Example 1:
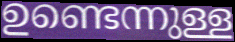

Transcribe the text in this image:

ഉണ്ടെന്നുള്ള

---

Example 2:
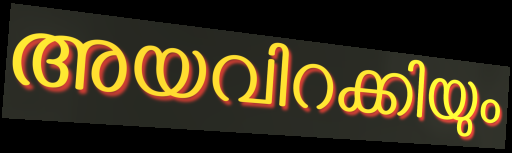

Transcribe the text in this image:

അയവിറക്കിയും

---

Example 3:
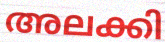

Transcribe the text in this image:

അലക്കി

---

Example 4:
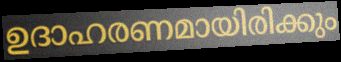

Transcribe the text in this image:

ഉദാഹരണമായിരിക്കും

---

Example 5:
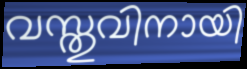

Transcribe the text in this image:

വസ്തുവിനായി